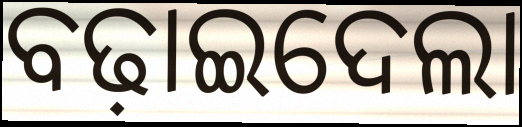
ବଢ଼ାଇଦେଲା